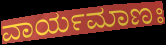
ವಾರ್ಯಮಾಣಃ